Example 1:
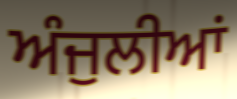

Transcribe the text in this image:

ਅੰਜੁਲੀਆਂ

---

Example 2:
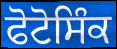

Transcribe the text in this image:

ਫੋਟੋਸਿੰਕ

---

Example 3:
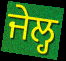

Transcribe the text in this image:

ਜੇਲ੍ਹ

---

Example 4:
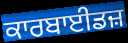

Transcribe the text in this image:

ਕਾਰਬਾਈਡਜ਼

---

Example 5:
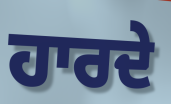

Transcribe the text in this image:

ਹਾਰਦੇ